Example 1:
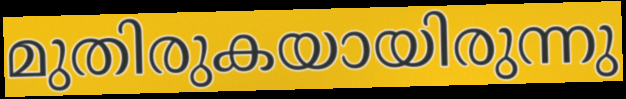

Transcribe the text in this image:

മുതിരുകയായിരുന്നു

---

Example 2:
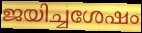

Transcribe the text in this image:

ജയിച്ചശേഷം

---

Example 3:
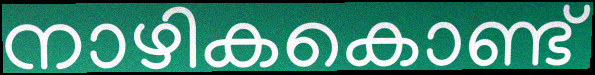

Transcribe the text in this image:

നാഴികകൊണ്ട്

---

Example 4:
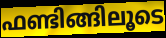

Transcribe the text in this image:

ഫണ്ടിങ്ങിലൂടെ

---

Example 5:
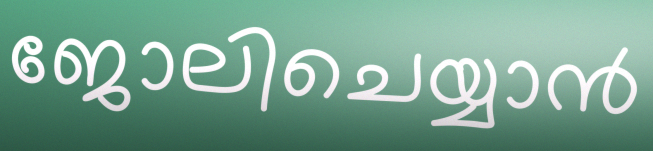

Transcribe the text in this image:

ജോലിചെയ്യാൻ